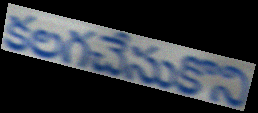
కలగచేసుకొని